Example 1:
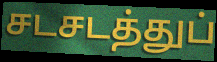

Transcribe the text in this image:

சடசடத்துப்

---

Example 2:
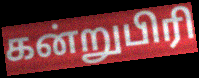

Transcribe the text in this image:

கன்றுபிரி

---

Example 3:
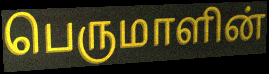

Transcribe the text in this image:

பெருமாளின்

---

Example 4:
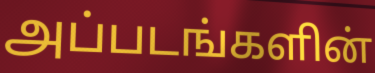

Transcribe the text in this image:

அப்படங்களின்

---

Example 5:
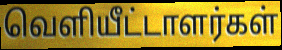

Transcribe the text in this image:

வெளியீட்டாளர்கள்